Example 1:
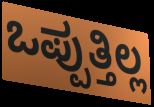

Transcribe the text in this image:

ಒಪ್ಪುತ್ತಿಲ್ಲ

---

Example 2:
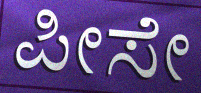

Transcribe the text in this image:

ಪೀಸೇ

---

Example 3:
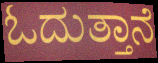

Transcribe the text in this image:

ಓದುತ್ತಾನೆ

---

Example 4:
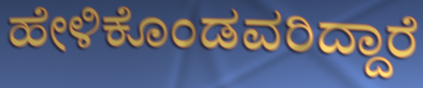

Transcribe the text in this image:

ಹೇಳಿಕೊಂಡವರಿದ್ದಾರೆ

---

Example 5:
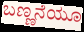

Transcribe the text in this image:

ಬಣ್ಣನೆಯೂ